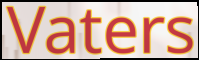
Vaters